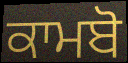
ਕਾਮਬੋ